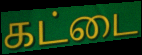
கட்டை